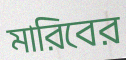
মারিবের